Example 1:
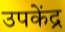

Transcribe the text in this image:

उपकेंद्र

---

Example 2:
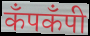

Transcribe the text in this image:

कँपकँपी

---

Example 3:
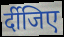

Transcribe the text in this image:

र्दीजिए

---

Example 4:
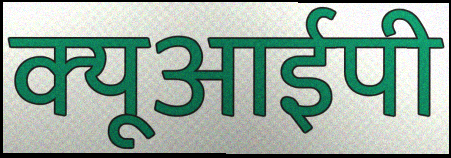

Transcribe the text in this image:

क्यूआईपी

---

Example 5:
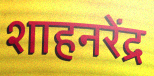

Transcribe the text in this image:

शाहनरेंद्र